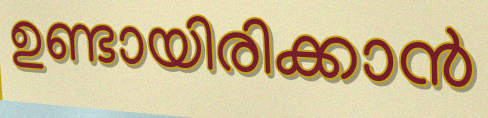
ഉണ്ടായിരിക്കാൻ